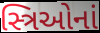
સ્ત્રિઓનાં